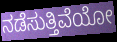
ನಡೆಸುತ್ತಿವೆಯೋ